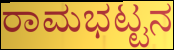
ರಾಮಭಟ್ಟನ